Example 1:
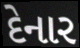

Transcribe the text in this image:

દેનાર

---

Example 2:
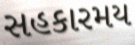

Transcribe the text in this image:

સહકારમય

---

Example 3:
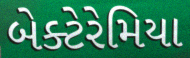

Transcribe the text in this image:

બેક્ટેરેમિયા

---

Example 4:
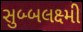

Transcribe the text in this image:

સુબ્બલક્ષ્મી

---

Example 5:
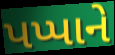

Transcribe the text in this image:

પપ્પાને